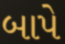
બાપે